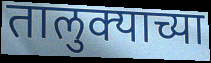
तालुक्याच्या